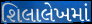
શિલાલેખમાં